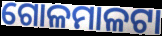
ଗୋଳମାଳଟା